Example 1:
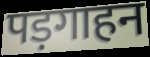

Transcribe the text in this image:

पड़गाहन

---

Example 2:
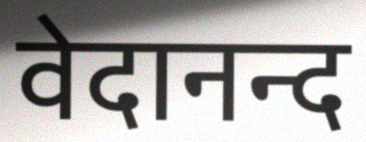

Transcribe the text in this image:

वेदानन्द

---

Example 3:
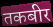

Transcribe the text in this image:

तकबीर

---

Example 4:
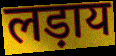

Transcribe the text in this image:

लड़ाय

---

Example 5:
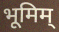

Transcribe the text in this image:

भूमिम्